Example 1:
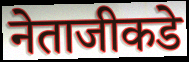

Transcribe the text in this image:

नेताजीकडे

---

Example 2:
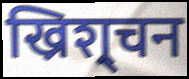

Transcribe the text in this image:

ख्रिश्र्चन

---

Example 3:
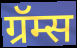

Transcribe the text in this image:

ग्रॅम्स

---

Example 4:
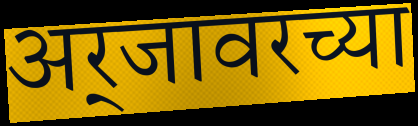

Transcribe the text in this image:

अर्जावरच्या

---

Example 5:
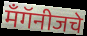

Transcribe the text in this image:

मँगॅनीजचे